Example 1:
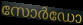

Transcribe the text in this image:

സോർഡോ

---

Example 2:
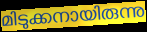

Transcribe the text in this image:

മിടുക്കനായിരുന്നു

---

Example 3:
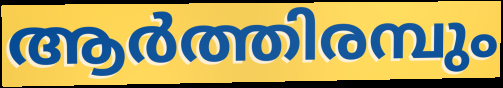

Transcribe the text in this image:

ആർത്തിരമ്പും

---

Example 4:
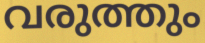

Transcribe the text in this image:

വരുത്തും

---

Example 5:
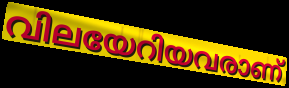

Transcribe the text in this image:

വിലയേറിയവരാണ്